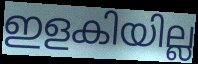
ഇളകിയില്ല